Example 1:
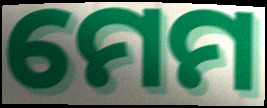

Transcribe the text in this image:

ମେମ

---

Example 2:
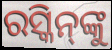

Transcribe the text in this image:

ରସ୍କିନ୍‌ଙ୍କୁ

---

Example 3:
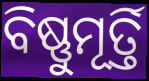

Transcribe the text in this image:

ବିଷ୍ଣୁମୂର୍ତ୍ତି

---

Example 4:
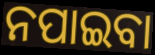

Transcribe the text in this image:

ନପାଇବା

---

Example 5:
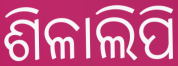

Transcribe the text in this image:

ଶିଳାଲିପି